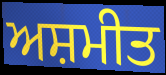
ਅਸ਼ਮੀਤ